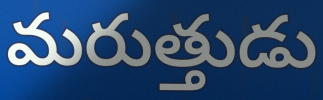
మరుత్తుడు